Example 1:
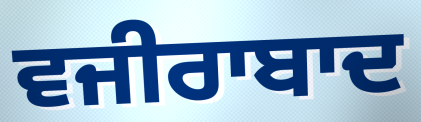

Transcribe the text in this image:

ਵਜੀਰਾਬਾਦ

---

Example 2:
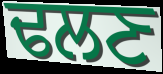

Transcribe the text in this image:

ਢਲਣ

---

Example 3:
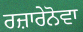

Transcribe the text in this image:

ਰਜ਼ਾਰੇਨੋਵਾ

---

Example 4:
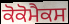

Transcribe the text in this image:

ਕੋਕੋਮੈਕਸ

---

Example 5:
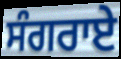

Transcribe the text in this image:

ਸੰਗਰਾਏ